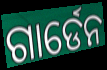
ଗାର୍ଡେନ